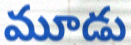
మూడు